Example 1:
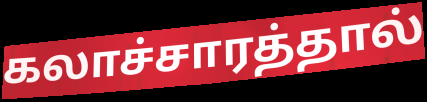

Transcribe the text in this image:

கலாச்சாரத்தால்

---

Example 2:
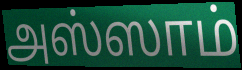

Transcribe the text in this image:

அஸ்ஸாம்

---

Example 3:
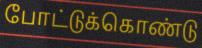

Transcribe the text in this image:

போட்டுக்கொண்டு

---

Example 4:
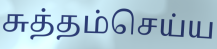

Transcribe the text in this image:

சுத்தம்செய்ய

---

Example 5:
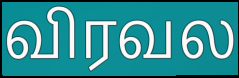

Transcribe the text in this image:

விரவல